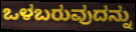
ಒಳಬರುವುದನ್ನು